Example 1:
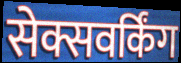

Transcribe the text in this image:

सेक्सवर्किंग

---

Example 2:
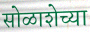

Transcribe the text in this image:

सोळाशेच्या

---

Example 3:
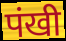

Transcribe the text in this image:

पंखी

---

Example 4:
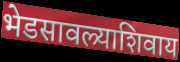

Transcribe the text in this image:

भेडसावल्याशिवाय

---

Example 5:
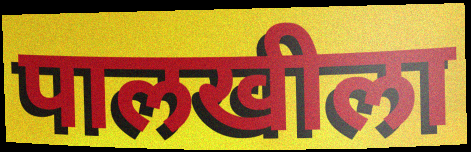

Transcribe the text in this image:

पालखीला